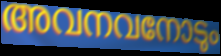
അവനവനോടും